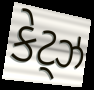
કેટ્ઝ